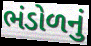
ભંડોળનું